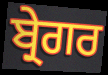
ਬ੍ਰੇਗਰ